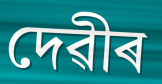
দেৱীৰ